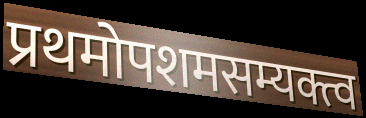
प्रथमोपशमसम्यक्त्व